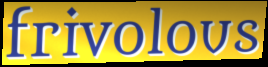
frivolous